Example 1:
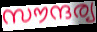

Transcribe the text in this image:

സൗന്ദര്യ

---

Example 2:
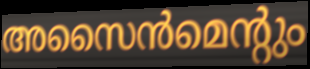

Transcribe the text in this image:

അസൈൻമെന്റും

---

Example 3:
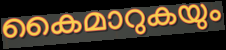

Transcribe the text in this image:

കൈമാറുകയും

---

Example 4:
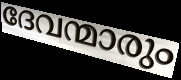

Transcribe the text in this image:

ദേവന്മാരും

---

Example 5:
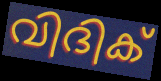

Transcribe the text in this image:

വിദിക്